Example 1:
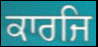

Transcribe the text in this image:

ਕਾਰਜਿ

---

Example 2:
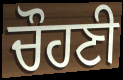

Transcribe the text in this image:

ਚੌਹਣੀ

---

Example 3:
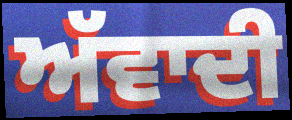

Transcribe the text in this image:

ਅੱਵਾਦੀ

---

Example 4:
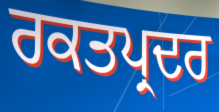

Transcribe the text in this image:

ਰਕਤਪ੍ਰਦਰ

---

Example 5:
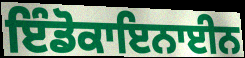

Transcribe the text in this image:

ਇੰਡੋਕਾਇਨਾਈਨ